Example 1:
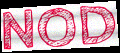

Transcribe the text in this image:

NOD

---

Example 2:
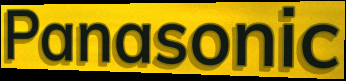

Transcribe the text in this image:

Panasonic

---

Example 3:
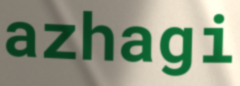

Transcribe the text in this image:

azhagi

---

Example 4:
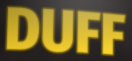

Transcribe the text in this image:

DUFF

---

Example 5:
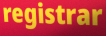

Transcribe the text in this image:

registrar